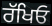
ਰੱਖਿਓ